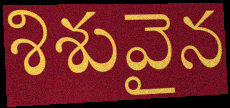
శిశువైన